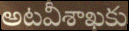
అటవీశాఖకు